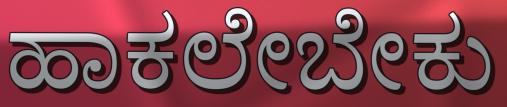
ಹಾಕಲೇಬೇಕು